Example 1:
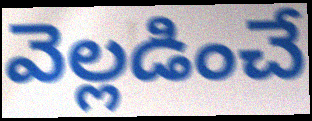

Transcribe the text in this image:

వెల్లడించే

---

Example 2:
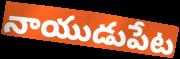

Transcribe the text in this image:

నాయుడుపేట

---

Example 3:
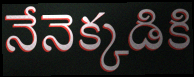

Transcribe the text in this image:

నేనెక్కడికి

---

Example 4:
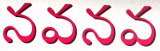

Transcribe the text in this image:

నవనవ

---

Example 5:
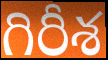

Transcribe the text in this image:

గిరీశ